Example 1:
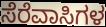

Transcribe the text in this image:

ಸೆರೆವಾಸಿಗಳ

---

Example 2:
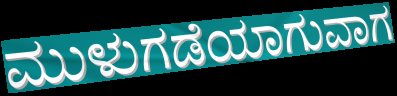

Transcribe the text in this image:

ಮುಳುಗಡೆಯಾಗುವಾಗ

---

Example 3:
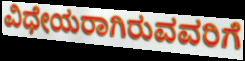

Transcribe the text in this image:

ವಿಧೇಯರಾಗಿರುವವರಿಗೆ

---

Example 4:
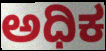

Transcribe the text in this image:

ಅಧಿಕ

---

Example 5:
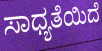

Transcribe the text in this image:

ಸಾಧ್ಯತೆಯಿದೆ